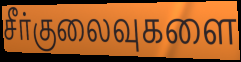
சீர்குலைவுகளை